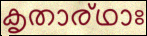
കൃതാര്ഥാഃ